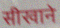
सीखाने